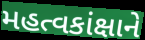
મહત્વકાંક્ષાને